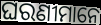
ଘରଣୀମାନେ